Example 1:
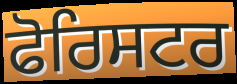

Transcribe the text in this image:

ਫੋਰਿਸਟਰ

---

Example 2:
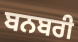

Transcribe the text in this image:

ਬਨਬਰੀ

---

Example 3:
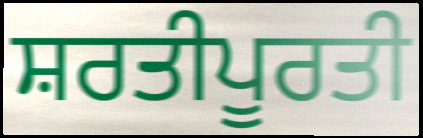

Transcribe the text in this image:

ਸ਼ਰਤੀਪੂਰਤੀ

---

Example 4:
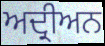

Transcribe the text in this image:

ਅਦ੍ਰੀਅਨ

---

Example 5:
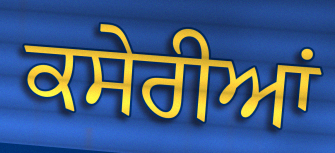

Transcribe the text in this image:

ਕਸੇਰੀਆਂ